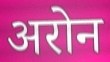
अरोन